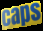
caps